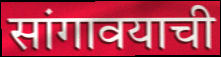
सांगावयाची